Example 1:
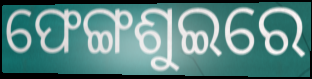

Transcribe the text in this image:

ଫେଙ୍ଗଶୁଇରେ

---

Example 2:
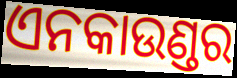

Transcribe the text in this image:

ଏନକାଉଣ୍ଡର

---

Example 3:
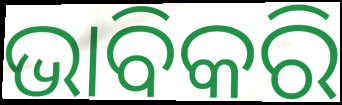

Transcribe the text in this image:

ଭାବିକରି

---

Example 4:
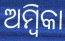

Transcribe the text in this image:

ଅମ୍ବିକା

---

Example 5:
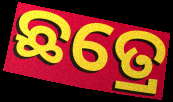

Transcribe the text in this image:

ଛତ୍ରେ